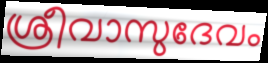
ശ്രീവാസുദേവം